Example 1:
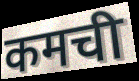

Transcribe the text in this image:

कमची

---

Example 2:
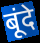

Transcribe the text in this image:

बूंदे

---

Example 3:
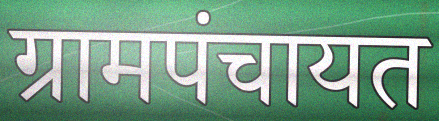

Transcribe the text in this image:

ग्रामपंचायत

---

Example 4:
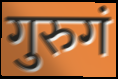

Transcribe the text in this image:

गुरुगं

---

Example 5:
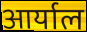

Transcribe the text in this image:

आर्याल